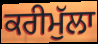
ਕਰੀਮੁੱਲਾ